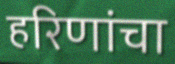
हरिणांचा